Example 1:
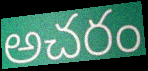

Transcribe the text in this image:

అచరం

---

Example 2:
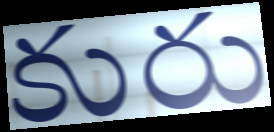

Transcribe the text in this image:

కురు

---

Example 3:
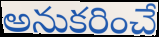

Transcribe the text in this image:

అనుకరించే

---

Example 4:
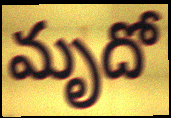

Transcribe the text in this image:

మృదో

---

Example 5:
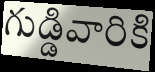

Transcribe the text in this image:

గుడ్డివారికి